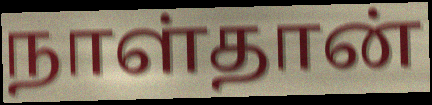
நாள்தான்